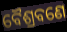
ବୈଶ୍ରବଣେ